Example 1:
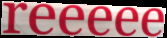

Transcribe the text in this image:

reeeee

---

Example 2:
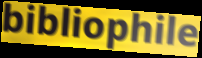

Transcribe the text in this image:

bibliophile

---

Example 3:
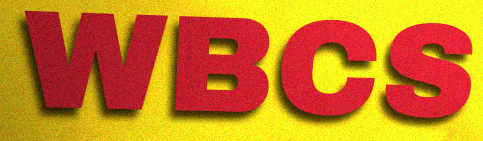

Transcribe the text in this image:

WBCS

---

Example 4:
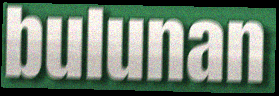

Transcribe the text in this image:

bulunan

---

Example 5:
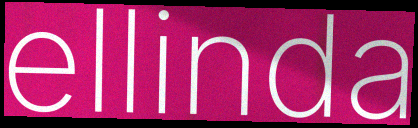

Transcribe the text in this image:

ellinda